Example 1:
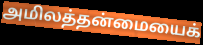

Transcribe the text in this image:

அமிலத்தன்மையைக்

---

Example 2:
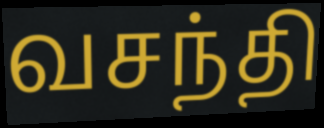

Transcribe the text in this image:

வசந்தி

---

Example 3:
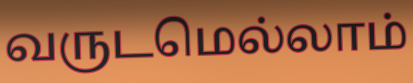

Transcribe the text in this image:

வருடமெல்லாம்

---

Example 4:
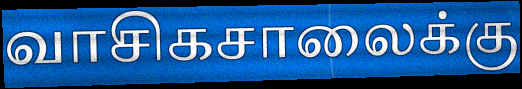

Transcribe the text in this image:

வாசிகசாலைக்கு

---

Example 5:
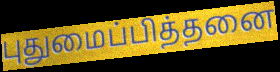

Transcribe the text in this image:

புதுமைப்பித்தனை